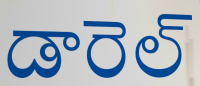
డారెల్